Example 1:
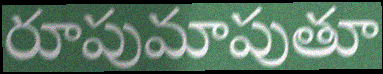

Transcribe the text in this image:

రూపుమాపుతూ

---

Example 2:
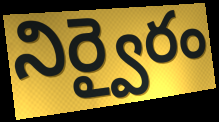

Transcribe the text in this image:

నిర్వైరం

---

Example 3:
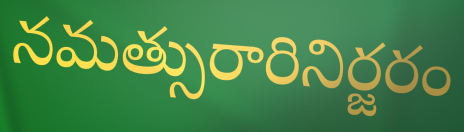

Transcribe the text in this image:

నమత్సురారినిర్జరం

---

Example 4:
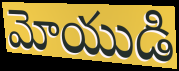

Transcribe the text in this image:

మోయుడి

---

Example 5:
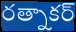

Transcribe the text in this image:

రత్నాకర్